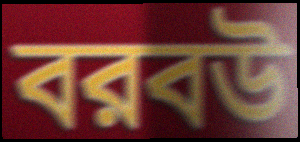
বরবউ